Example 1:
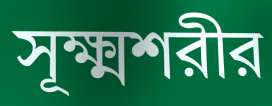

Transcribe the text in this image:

সূক্ষ্মশরীর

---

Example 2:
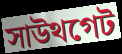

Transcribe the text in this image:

সাউথগেট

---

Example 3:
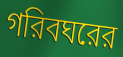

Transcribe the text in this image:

গরিবঘরের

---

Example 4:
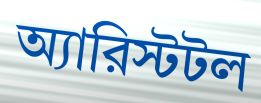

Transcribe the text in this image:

অ্যারিস্টটল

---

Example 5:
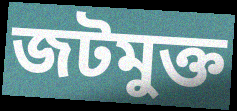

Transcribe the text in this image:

জটমুক্ত